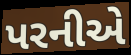
પરનીએ